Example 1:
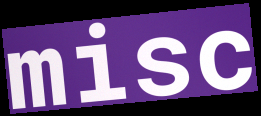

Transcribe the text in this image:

misc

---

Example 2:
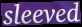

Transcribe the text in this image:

sleeved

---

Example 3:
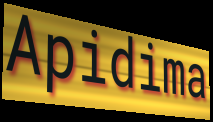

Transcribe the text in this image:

Apidima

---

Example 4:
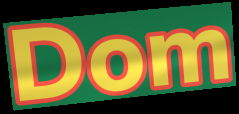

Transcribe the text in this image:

Dom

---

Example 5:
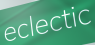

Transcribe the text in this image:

eclectic